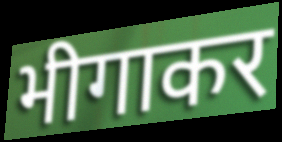
भीगाकर